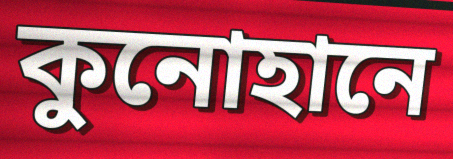
কুনোহানে